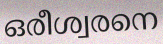
ഒരീശ്വരനെ